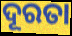
ଦୂରତା